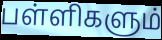
பள்ளிகளும்